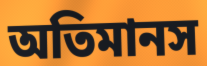
অতিমানস